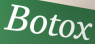
Botox